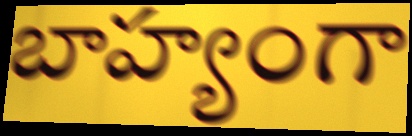
బాహ్యంగా